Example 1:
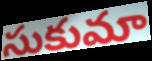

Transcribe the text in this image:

సుకుమా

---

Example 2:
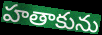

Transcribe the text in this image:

హతాకును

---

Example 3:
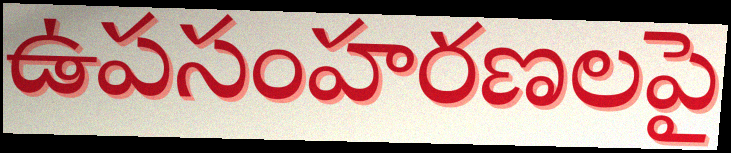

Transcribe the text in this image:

ఉపసంహరణలపై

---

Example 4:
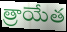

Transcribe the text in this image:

త్రాయేత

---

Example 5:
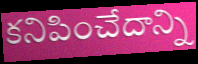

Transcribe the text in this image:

కనిపించేదాన్ని